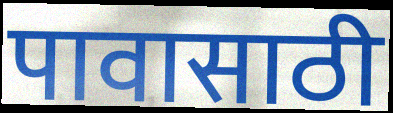
पावासाठी